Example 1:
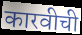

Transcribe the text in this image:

कारवीची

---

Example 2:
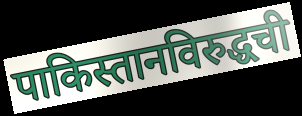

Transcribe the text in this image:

पाकिस्तानविरुद्धची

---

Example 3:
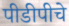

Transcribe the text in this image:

पीडीपीचे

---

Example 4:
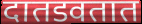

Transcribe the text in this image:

दातडवतात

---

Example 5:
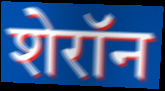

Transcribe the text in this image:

शेरॉन